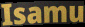
Isamu